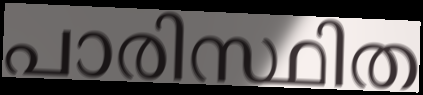
പാരിസ്ഥിത